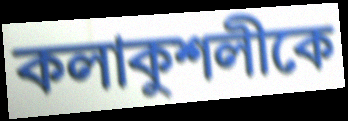
কলাকুশলীকে